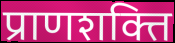
प्राणशक्ति